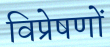
विप्रेषणों